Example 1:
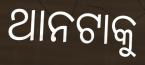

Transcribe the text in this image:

ଥାନଟାକୁ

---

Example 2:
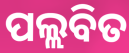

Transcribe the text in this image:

ପଲ୍ଲବିତ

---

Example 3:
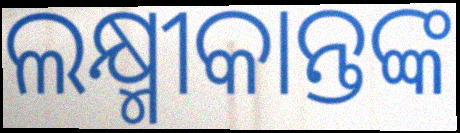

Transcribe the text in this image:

ଲକ୍ଷ୍ମୀକାନ୍ତଙ୍କ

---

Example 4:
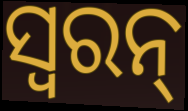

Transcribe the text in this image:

ସ୍ୱରନ୍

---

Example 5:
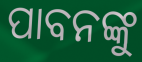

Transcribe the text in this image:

ପାବନଙ୍କୁ